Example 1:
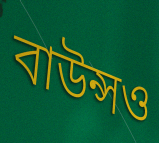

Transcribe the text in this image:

বাউন্সও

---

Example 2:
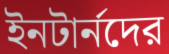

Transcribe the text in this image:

ইনটার্নদের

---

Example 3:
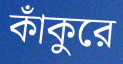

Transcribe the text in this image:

কাঁকুরে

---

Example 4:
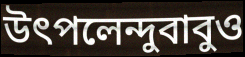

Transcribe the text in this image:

উৎপলেন্দুবাবুও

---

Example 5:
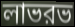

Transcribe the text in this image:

লাভরভ